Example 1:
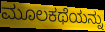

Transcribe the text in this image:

ಮೂಲಕಥೆಯನ್ನು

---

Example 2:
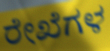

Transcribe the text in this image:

ರೇಖೆಗಳ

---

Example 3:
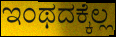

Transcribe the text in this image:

ಇಂಥದಕ್ಕೆಲ್ಲ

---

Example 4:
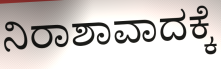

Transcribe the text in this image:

ನಿರಾಶಾವಾದಕ್ಕೆ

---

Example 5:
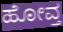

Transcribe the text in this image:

ಹೋವ್ತ